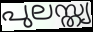
പുലസ്ത്യ